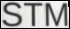
STM